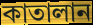
কাতালান